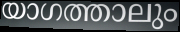
യാഗത്താലും